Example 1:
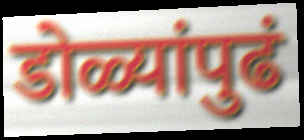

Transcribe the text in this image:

डोळ्यांपुढं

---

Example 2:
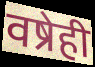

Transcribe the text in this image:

वष्रेही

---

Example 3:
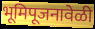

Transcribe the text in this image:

भूमिपूजनावेळी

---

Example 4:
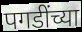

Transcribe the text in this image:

पगडींच्या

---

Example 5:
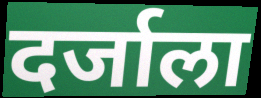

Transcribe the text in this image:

दर्जाला